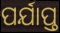
ପର୍ଯାପ୍ତ